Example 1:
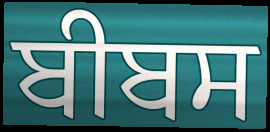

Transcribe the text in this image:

ਬੀਬਸ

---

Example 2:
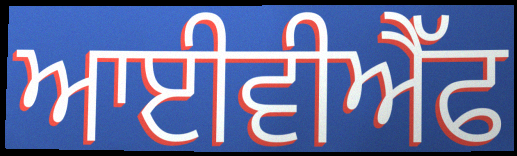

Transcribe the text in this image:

ਆਈਵੀਐੱਫ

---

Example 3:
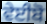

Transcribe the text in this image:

ਵੇਈਬੋ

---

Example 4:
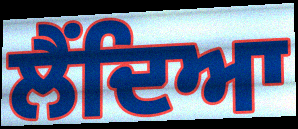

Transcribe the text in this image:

ਲੈਂਦਿਆ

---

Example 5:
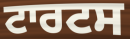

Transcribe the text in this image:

ਟਾਰਟਸ